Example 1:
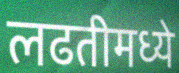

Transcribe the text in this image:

लढतीमध्ये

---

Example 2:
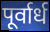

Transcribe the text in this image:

पूर्वार्ध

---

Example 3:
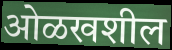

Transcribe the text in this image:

ओळखशील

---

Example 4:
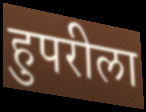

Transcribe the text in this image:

हुपरीला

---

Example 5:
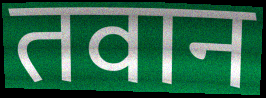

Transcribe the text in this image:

तवान